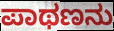
ಪಾಥಣನು